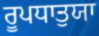
ਰੂਪਧਾਤੁਯਾ